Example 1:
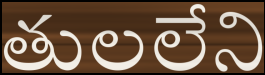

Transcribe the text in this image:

తులలేని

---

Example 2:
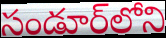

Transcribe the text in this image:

సండూర్‌లోని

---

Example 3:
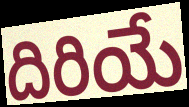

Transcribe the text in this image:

దిరియే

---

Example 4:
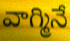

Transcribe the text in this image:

వాగ్మినే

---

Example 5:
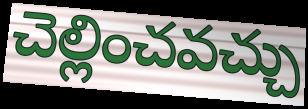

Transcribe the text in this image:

చెల్లించవచ్చు